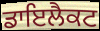
ਡਾਇਲੈਕਟ